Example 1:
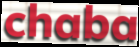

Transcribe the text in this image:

chaba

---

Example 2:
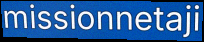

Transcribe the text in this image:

missionnetaji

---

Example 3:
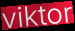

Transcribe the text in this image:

viktor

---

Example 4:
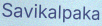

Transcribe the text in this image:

Savikalpaka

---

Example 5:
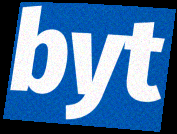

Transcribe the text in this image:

byt